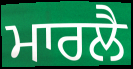
ਮਾਰਲੈ